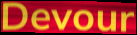
Devour